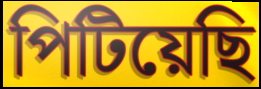
পিটিয়েছি